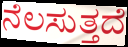
ನೆಲಸುತ್ತದೆ